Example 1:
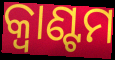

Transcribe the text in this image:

କ୍ୱାଣ୍ଟମ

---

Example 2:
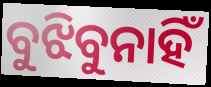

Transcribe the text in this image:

ବୁଝିବୁନାହିଁ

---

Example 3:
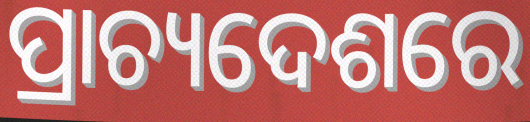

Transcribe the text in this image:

ପ୍ରାଚ୍ୟଦେଶରେ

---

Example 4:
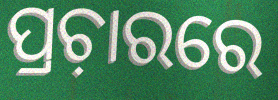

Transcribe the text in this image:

ପ୍ରଚ଼ାରରେ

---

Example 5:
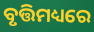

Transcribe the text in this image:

ବୃତ୍ତିମଧ୍ୟରେ